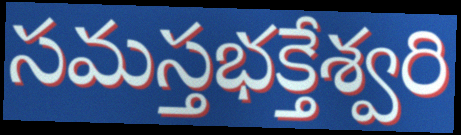
సమస్తభక్తేశ్వరి